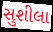
સુશીલા